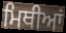
ਮਿਥੀਆਂ